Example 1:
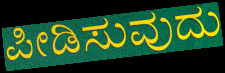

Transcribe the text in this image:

ಪೀಡಿಸುವುದು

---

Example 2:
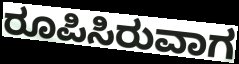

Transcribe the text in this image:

ರೂಪಿಸಿರುವಾಗ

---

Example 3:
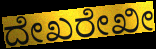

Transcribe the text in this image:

ದೇಖರೇಖೀ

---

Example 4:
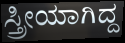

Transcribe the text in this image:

ಸ್ತ್ರೀಯಾಗಿದ್ದ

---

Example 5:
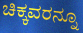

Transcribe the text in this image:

ಚಿಕ್ಕವರನ್ನೂ